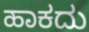
ಹಾಕದು